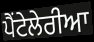
ਪੈਂਟੇਲੇਰੀਆ